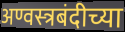
अण्वस्त्रबंदीच्या